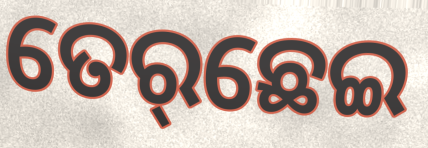
ତେର୍‌ଛେଇ